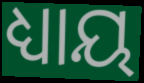
ଧ୍ୟାୟ